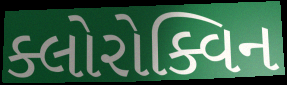
ક્લોરોક્વિન